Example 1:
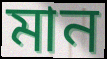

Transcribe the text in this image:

মান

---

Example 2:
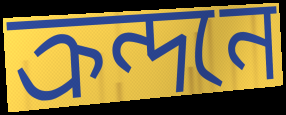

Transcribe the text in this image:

ক্রন্দনে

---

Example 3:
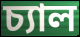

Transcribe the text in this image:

চ্যাল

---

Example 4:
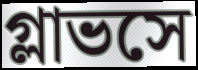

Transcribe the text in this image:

গ্লাভসে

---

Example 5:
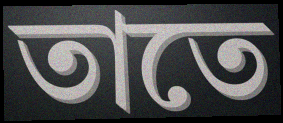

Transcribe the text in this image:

তাতে